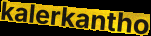
kalerkantho